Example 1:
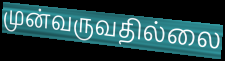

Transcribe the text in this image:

முன்வருவதில்லை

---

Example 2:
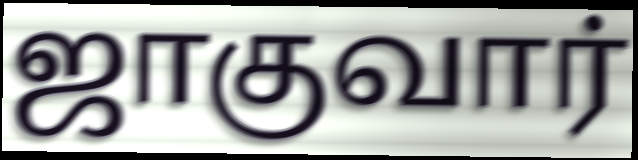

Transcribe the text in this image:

ஜாகுவார்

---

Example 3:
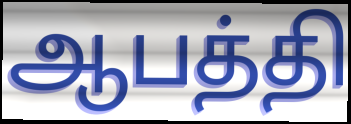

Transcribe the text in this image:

ஆபத்தி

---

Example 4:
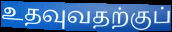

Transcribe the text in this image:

உதவுவதற்குப்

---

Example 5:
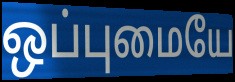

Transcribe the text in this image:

ஒப்புமையே